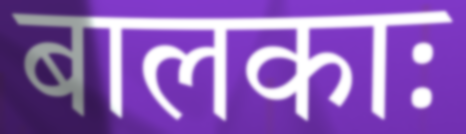
बालकाः